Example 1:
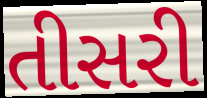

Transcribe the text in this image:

તીસરી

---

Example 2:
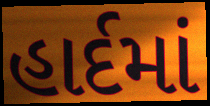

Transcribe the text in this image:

હાર્દમાં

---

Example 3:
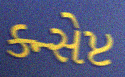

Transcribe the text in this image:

ક્ન્સેપ્ટ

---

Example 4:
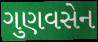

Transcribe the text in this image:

ગુણવસેન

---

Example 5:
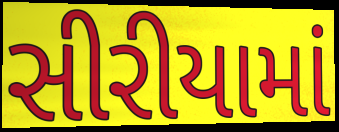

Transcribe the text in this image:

સીરીયામાં